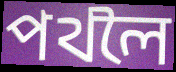
পথলৈ